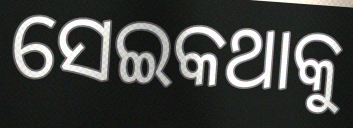
ସେଇକଥାକୁ